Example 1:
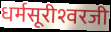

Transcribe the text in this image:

धर्मसूरीश्वरजी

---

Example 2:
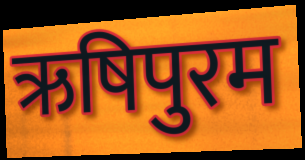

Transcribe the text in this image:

ऋषिपुरम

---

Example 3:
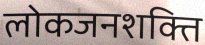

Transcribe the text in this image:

लोकजनशक्ति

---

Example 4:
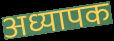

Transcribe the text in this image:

अध्‍यापक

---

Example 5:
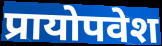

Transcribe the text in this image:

प्रायोपवेश